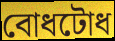
বোধটোধ